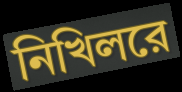
নিখিলরে